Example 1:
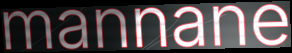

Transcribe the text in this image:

mannane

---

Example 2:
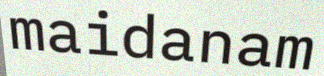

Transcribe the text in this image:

maidanam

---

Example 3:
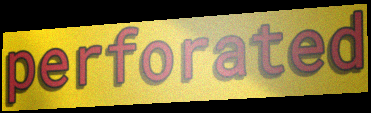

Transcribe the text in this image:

perforated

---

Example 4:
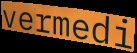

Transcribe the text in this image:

vermedi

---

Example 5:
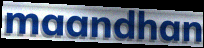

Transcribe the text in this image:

maandhan